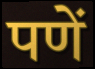
पणें